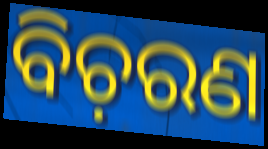
ବିଚ଼ରଣ